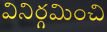
వినిర్గమించి